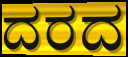
ದರದ